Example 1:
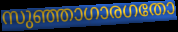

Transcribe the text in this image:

സുഞ്ഞാഗാരഗതോ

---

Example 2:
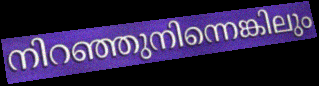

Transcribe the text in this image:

നിറഞ്ഞുനിന്നെങ്കിലും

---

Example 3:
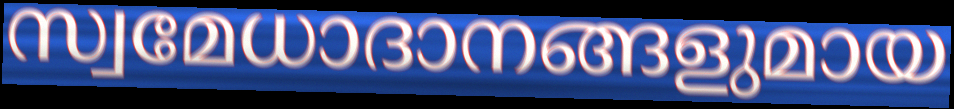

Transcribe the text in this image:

സ്വമേധാദാനങ്ങളുമായ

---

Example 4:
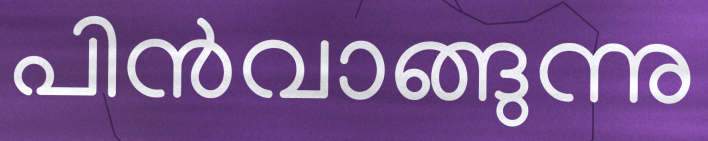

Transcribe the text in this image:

പിൻവാങ്ങുന്നു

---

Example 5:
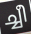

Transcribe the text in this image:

ച്ചീ